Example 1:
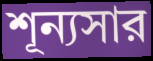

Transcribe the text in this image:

শূন্যসার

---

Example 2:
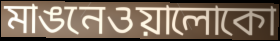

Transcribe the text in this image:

মাঙনেওয়ালোকো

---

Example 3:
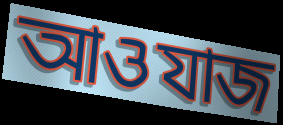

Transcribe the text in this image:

আওযাজ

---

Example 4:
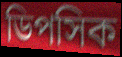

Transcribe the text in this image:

ডিপসিক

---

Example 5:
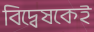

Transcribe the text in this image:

বিদ্বেষকেই